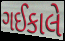
ગઈકાલે